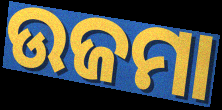
ଉଜମା